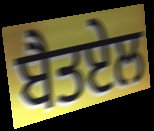
ਬੈਤਏਲ